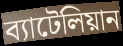
ব্যাটেলিয়ান